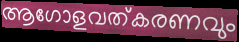
ആഗോളവത്കരണവും